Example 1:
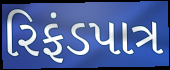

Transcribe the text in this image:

રિફંડપાત્ર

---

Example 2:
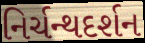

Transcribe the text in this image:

નિર્ચન્થદર્શન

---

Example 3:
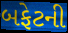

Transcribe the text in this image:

બફેટની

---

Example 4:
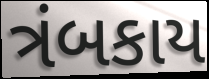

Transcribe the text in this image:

ત્રંબકાય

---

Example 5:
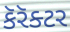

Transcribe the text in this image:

કૅરૅક્ટર